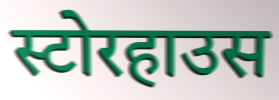
स्टोरहाउस